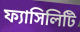
ফ্যাসিলিটি